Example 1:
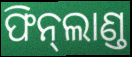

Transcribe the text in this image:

ଫିନ୍‌ଲାଣ୍ଡ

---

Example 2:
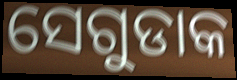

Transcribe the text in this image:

ସେଗୁଡାକ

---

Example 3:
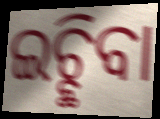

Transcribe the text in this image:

ଇଚ୍ଛିବା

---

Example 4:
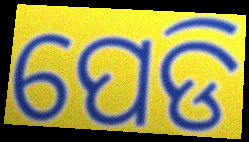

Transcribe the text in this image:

ପେଡି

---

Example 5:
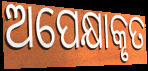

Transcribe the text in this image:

ଅପେକ୍ଷାକୃତ